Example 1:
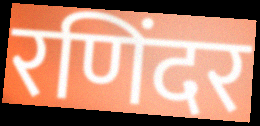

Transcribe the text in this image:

रणिंदर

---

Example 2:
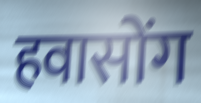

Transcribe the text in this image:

हवासोंग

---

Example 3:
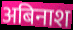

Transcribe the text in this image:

अबिनाश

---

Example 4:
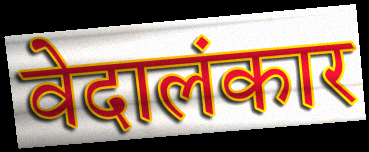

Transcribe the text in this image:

वेदालंकार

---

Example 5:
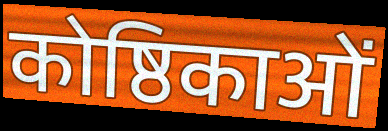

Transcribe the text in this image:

कोष्ठिकाओं